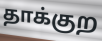
தாக்குற